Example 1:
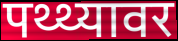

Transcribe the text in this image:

पथ्थ्यावर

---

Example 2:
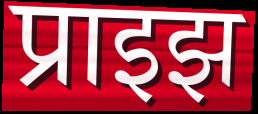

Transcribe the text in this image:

प्राइझ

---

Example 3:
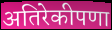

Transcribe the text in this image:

अतिरेकीपणा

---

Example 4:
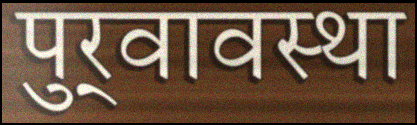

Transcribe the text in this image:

पुर्वावस्था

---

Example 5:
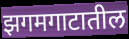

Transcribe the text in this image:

झगमगाटातील